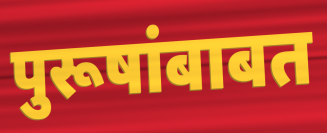
पुरूषांबाबत